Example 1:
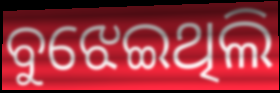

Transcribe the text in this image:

ବୁଝେଇଥିଲି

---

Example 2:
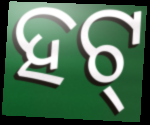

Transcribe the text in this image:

ହଟ୍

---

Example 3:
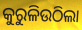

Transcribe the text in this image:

କୁରୁଳିଉଠିଲା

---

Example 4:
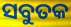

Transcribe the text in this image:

ସବୁତକ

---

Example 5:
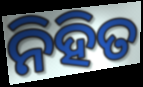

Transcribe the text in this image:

ନିହିତ